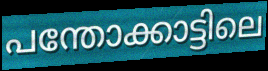
പന്തോക്കാട്ടിലെ